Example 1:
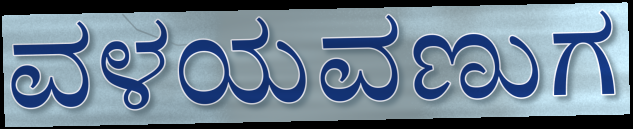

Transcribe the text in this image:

ವಳಯವಣುಗ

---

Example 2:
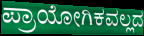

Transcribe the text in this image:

ಪ್ರಾಯೋಗಿಕವಲ್ಲದ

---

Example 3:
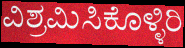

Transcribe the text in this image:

ವಿಶ್ರಮಿಸಿಕೊಳ್ಳಿರಿ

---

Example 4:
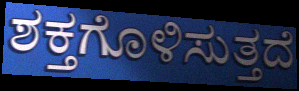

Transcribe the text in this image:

ಶಕ್ತಗೊಳಿಸುತ್ತದೆ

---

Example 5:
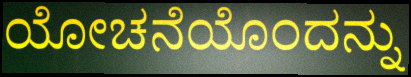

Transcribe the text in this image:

ಯೋಚನೆಯೊಂದನ್ನು